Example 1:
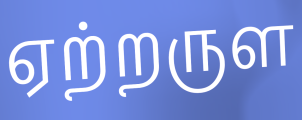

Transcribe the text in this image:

ஏற்றருள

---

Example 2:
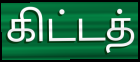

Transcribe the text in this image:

கிட்டத்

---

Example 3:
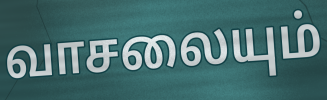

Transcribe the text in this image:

வாசலையும்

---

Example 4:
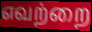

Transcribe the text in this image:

எவற்றை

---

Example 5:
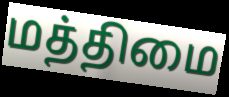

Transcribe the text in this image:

மத்திமை